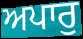
ਅਪਾਰੁ